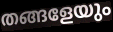
തങ്ങളേയും